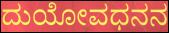
ದುಯೋವಧನನ